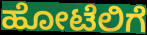
ಹೋಟೆಲಿಗೆ